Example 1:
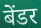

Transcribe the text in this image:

बेंडर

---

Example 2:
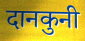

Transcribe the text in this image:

दानकुनी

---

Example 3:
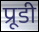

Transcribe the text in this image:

प्रूडी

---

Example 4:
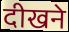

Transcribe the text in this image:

दीखने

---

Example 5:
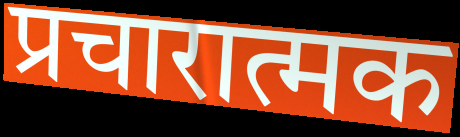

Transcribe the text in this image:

प्रचारात्मक